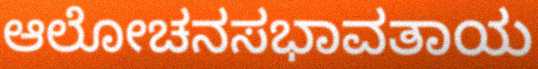
ಆಲೋಚನಸಭಾವತಾಯ